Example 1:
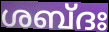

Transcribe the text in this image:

ശബ്ദഃ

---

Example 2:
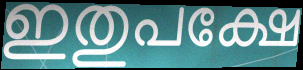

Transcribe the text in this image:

ഇതുപക്ഷേ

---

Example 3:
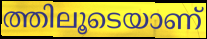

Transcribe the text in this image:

ത്തിലൂടെയാണ്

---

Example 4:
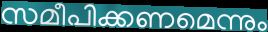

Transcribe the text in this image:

സമീപിക്കണമെന്നും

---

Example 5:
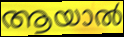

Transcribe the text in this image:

ആയാൽ